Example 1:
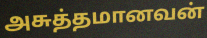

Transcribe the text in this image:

அசுத்தமானவன்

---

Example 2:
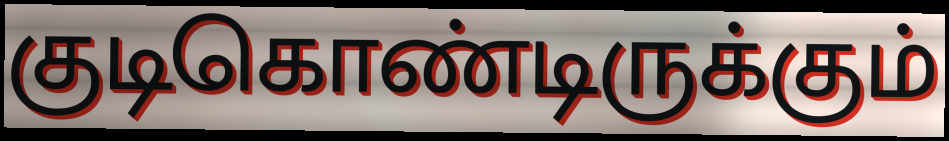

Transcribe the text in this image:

குடிகொண்டிருக்கும்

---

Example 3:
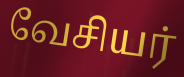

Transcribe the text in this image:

வேசியர்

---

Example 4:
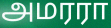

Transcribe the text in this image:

அமரரா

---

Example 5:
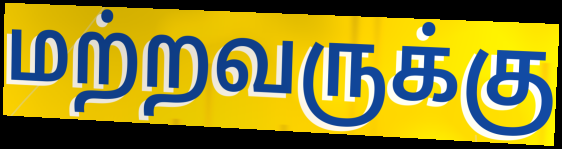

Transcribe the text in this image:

மற்றவருக்கு